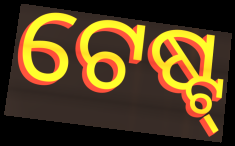
ଟେଷ୍ଟ୍